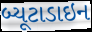
બ્યૂટાડાઇન